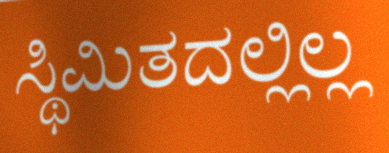
ಸ್ಥಿಮಿತದಲ್ಲಿಲ್ಲ